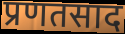
प्रणतसाद